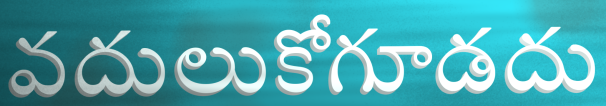
వదులుకోగూడదు